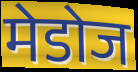
मेडोज